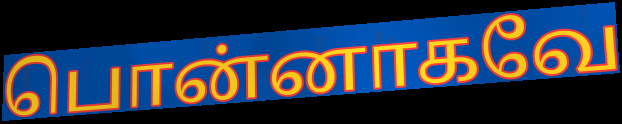
பொன்னாகவே